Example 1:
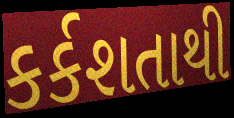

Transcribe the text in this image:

કર્કશતાથી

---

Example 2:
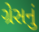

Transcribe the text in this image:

ગ્રેસનું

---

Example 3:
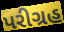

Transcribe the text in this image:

પરીગ્રહ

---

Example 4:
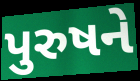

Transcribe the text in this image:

પુરુષને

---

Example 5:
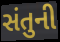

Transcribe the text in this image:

સંતુની